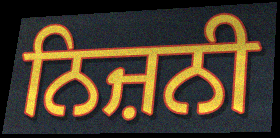
ਨਿਜ਼ਨੀ